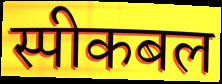
स्पीकबल